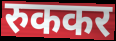
रुककर